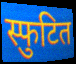
स्फुटित